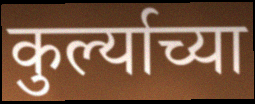
कुर्ल्याच्या